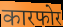
कारफोर